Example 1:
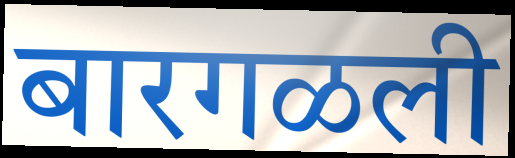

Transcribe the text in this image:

बारगळली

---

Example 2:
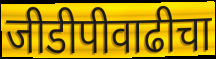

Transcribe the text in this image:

जीडीपीवाढीचा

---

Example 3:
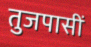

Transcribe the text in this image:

तुजपासीं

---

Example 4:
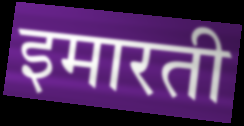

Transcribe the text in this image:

इमारती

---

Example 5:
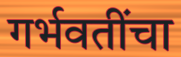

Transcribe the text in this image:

गर्भवतींचा